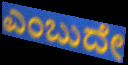
ಎಂಬುದೇ